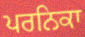
ਪਰਨਿਕਾ